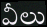
వీలు